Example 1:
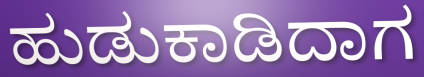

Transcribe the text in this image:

ಹುಡುಕಾಡಿದಾಗ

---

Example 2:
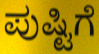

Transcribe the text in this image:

ಪುಷ್ಟಿಗೆ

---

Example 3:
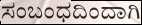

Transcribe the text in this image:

ಸಂಬಂಧದಿಂದಾಗಿ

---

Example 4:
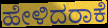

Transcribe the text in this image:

ಹೇಳಿದರಾಕೆ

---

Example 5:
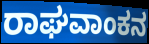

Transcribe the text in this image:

ರಾಘವಾಂಕನ